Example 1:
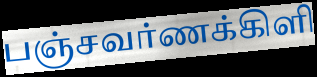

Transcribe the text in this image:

பஞ்சவர்ணக்கிளி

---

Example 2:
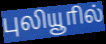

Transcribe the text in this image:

புலியூரில்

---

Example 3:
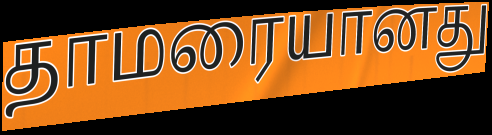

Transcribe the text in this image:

தாமரையானது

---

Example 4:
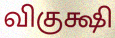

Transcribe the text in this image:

விகுக்ஷி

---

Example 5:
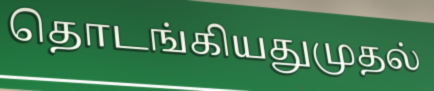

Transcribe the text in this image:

தொடங்கியதுமுதல்